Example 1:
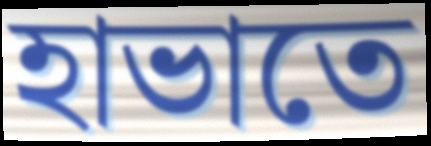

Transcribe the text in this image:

হাভাতে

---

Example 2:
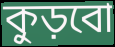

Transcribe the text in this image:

কুড়বো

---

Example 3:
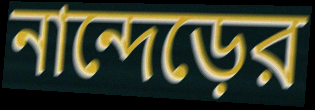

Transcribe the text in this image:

নান্দেড়ের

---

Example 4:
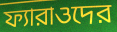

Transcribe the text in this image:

ফ্যারাওদের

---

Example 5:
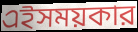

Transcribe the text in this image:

এইসময়কার